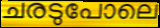
ചരടുപോലെ